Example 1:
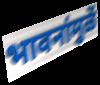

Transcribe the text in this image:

भावनांमुळें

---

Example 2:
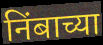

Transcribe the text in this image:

निंबाच्या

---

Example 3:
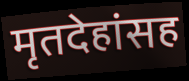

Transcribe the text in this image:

मृतदेहांसह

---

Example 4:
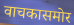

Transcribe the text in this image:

वाचकासमोर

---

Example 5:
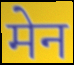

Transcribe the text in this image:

मेन